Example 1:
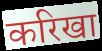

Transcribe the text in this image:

करिखा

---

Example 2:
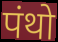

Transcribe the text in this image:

पंथो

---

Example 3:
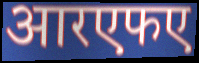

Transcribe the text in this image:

आरएफए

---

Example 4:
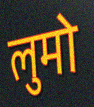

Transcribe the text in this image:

लुमो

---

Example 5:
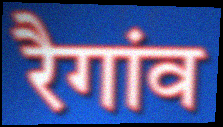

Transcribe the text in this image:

रैगांव